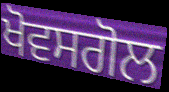
ਖੋਵਸਗੋਲ